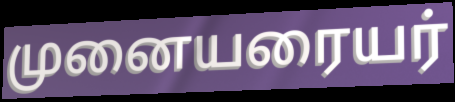
முனையரையர்